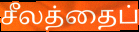
சீலத்தைப்